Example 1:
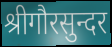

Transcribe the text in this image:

श्रीगौरसुन्दर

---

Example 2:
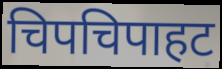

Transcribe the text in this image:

चिपचिपाहट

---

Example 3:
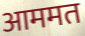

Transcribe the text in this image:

आममत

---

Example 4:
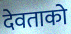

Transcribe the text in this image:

देवताको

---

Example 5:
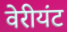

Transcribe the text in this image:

वेरीयंट